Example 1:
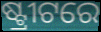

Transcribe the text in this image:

ଷ୍ଟ୍ରୀଟରେ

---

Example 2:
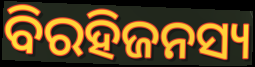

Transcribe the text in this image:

ବିରହିଜନସ୍ୟ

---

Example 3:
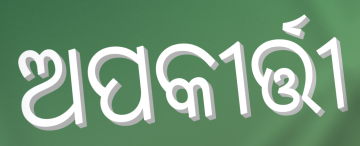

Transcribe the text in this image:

ଅପକୀର୍ତ୍ତୀ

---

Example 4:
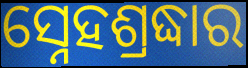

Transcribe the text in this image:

ସ୍ନେହଶ୍ରଦ୍ଧାର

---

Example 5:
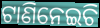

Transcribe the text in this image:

ଟାଣିନେଇଚି